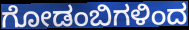
ಗೋಡಂಬಿಗಳಿಂದ